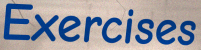
Exercises